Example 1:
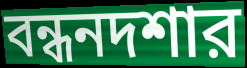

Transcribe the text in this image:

বন্ধনদশার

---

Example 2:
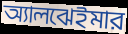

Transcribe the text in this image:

অ্যালঝেইমার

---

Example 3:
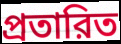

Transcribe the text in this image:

প্রতারিত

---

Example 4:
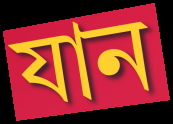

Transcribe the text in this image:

যান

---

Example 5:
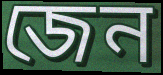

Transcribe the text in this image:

জেন